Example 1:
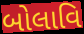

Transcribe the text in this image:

બોલાવિ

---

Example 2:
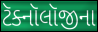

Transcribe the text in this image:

ટૅક્નૉલૉજીના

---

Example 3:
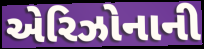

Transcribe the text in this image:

એરિઝોનાની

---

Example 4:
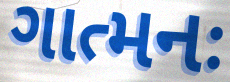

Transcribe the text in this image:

ગાત્મનઃ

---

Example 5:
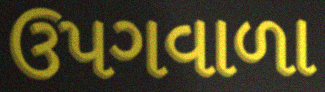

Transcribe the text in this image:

ઉપગવાળા